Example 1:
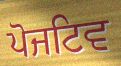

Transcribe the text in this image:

ਪੋਜਟਿਵ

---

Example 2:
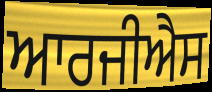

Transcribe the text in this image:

ਆਰਜੀਐਸ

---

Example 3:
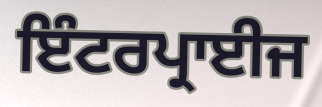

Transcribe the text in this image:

ਇੰਟਰਪ੍ਰਾਈਜ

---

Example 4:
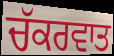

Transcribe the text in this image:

ਚੱਕਰਵਾਤ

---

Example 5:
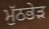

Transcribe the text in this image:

ਮੁੱਠਭੇੜ